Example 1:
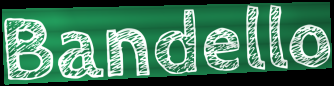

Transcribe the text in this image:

Bandello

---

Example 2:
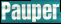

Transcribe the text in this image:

Pauper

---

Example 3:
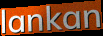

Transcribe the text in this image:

lankan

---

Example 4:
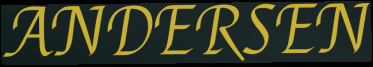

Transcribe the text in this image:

ANDERSEN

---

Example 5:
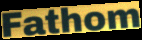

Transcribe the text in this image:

Fathom